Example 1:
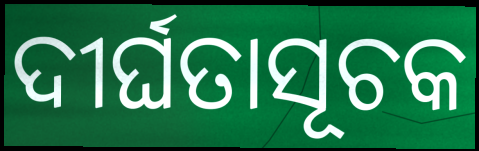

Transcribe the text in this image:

ଦୀର୍ଘତାସୂଚକ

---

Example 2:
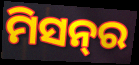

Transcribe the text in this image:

ମିସନ୍‌ର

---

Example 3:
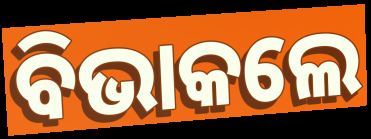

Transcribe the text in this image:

ବିଭାକଲେ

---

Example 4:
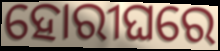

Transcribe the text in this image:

ହୋରୀଘରେ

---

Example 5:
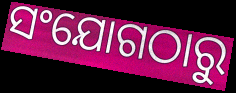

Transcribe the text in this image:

ସଂଯୋଗଠାରୁ